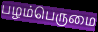
பழம்பெருமை